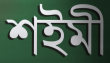
শইমী